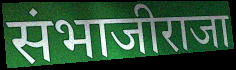
संभाजीराजा